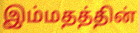
இம்மதத்தின்